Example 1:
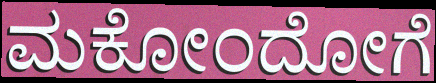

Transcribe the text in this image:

ಮಕೋಂದೋಗೆ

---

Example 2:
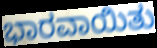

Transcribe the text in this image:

ಭಾರವಾಯಿತು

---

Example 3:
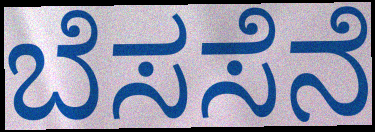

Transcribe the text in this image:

ಬೆಸಸೆನೆ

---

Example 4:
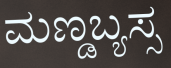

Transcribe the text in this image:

ಮಣ್ಡಬ್ಯಸ್ಸ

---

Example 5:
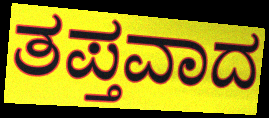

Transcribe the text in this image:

ತಪ್ತವಾದ